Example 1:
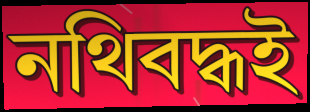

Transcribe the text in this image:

নথিবদ্ধই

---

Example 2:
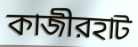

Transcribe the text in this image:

কাজীরহাট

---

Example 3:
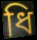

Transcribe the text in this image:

ধি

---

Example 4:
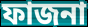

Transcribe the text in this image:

ফাজনা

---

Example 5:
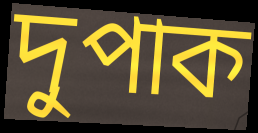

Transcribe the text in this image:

দুপাক